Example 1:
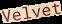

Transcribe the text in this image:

Velvet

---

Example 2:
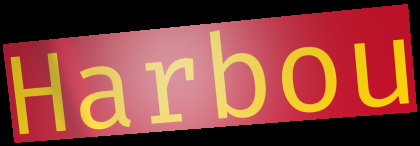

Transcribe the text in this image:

Harbou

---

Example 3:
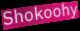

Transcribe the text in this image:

Shokoohy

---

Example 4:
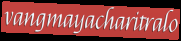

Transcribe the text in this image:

vangmayacharitralo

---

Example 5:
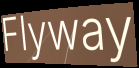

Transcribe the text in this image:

Flyway